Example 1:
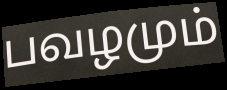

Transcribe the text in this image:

பவழமும்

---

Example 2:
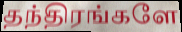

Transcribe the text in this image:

தந்திரங்களே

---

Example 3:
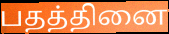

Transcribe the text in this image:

பதத்தினை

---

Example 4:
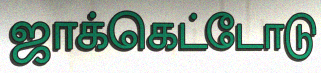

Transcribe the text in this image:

ஜாக்கெட்டோடு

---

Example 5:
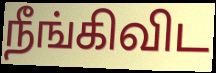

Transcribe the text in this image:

நீங்கிவிட